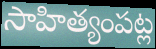
సాహిత్యంపట్ల